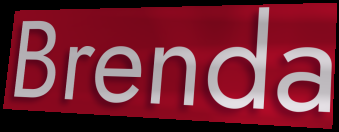
Brenda